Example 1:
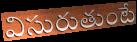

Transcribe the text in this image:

విసురుతుంటే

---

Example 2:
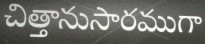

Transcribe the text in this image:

చిత్తానుసారముగా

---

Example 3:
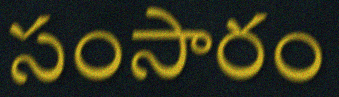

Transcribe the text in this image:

సంసారం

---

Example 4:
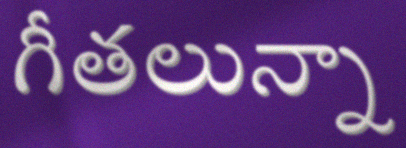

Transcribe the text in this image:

గీతలున్నా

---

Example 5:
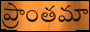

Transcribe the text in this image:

ప్రాంతమా